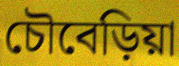
চৌবেড়িয়া